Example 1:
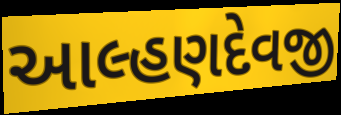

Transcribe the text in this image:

આલ્હણદેવજી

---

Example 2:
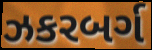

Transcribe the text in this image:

ઝકરબર્ગ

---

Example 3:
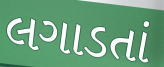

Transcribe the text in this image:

લગાડતાં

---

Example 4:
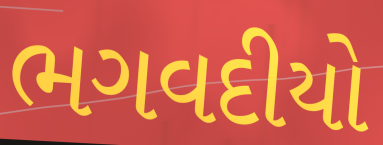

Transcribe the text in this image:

ભગવદીયો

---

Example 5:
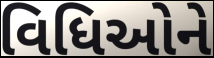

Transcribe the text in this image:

વિધિઓને